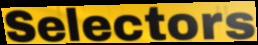
Selectors